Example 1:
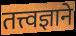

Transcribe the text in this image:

तत्त्वज्ञाने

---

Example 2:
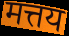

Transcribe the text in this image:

मत्तय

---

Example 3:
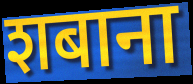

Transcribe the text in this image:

शबाना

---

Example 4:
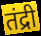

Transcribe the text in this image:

तंद्री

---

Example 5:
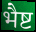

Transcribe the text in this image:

भैष्ट